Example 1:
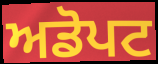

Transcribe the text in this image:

ਅਡੋਪਟ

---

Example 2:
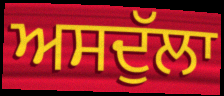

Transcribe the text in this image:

ਅਸਦੁੱਲਾ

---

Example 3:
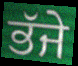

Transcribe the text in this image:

ਭੱਜੇ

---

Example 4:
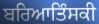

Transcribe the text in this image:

ਬਰਿਆਤਿੰਸਕੀ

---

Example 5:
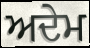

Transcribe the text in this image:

ਅਦੇਮ